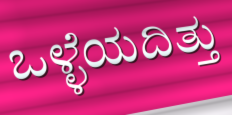
ಒಳ್ಳೆಯದಿತ್ತು